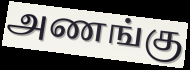
அணங்கு